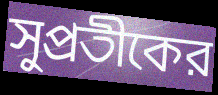
সুপ্রতীকের